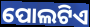
ପୋଲଟିଏ